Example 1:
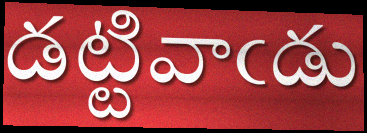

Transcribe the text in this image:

డట్టివాఁడు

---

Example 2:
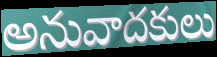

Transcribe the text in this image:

అనువాదకులు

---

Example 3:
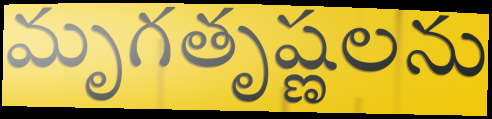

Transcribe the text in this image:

మృగతృష్ణలను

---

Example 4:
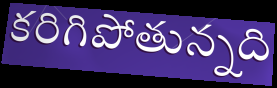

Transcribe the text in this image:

కరిగిపోతున్నది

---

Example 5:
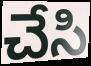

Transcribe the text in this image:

చేసి